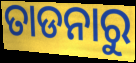
ତାଡନାରୁ